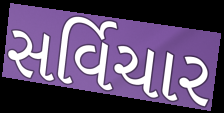
સર્વિચાર